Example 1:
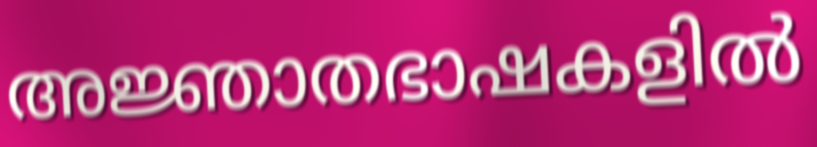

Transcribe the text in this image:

അജ്ഞാതഭാഷകളിൽ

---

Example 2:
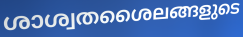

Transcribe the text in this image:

ശാശ്വതശൈലങ്ങളുടെ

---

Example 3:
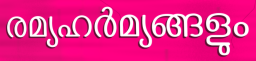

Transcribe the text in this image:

രമ്യഹർമ്യങ്ങളും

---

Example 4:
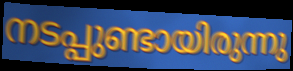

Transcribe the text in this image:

നടപ്പുണ്ടായിരുന്നു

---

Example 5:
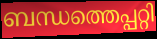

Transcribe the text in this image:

ബന്ധത്തെപ്പറ്റി